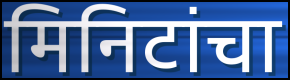
मिनिटांचा